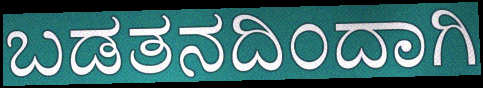
ಬಡತನದಿಂದಾಗಿ